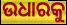
ଉଧାରକୁ